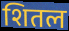
शितल